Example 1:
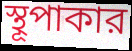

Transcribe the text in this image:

স্থূপাকার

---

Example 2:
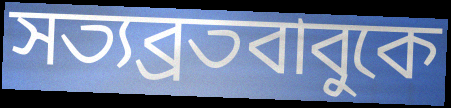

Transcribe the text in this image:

সত্যব্রতবাবুকে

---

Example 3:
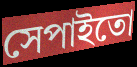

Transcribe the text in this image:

সেপাইতো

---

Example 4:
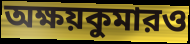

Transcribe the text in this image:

অক্ষয়কুমারও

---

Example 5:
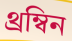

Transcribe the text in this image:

থ্রম্বিন